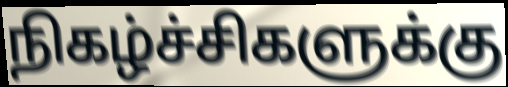
நிகழ்ச்சிகளுக்கு